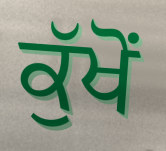
ਕੁੱਖੋਂ